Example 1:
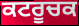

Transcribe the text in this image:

ਕਟਰੂਚਕ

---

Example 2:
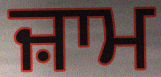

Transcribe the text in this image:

ਜ਼ਾਮ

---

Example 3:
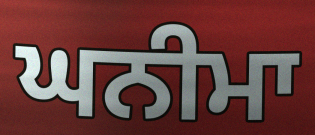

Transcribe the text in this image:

ਘਨੀਮਾ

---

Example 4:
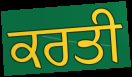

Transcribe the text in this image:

ਕਰਤੀ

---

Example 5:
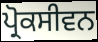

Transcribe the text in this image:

ਪ੍ਰੋਕਸੀਵਨ